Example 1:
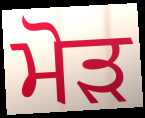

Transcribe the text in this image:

ਮੋੜ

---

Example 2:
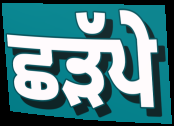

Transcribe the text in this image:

ਛੜੱਪੇ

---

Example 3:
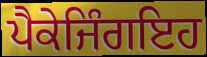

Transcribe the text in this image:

ਪੈਕੇਜਿੰਗਇਹ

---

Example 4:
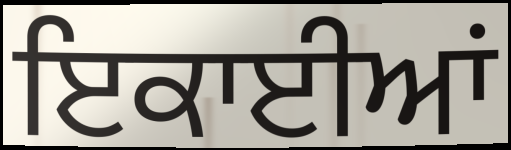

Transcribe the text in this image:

ਇਕਾਈਆਂ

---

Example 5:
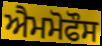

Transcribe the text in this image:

ਐਮਮੋਫੌਸ